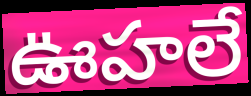
ఊహలే